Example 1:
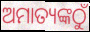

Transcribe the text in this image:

ଅମାତ୍ୟଙ୍କଠୁଁ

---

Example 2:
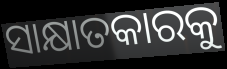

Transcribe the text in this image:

ସାକ୍ଷାତକାରକୁ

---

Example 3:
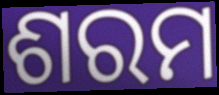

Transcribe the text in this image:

ଶରମ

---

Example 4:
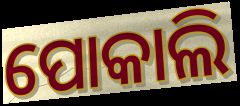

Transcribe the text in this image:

ପୋକାଲି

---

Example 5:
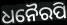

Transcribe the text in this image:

ଧନୈରପି